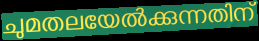
ചുമതലയേൽക്കുന്നതിന്